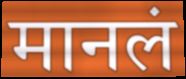
मानलं